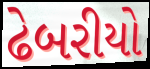
ઢેબરીયો